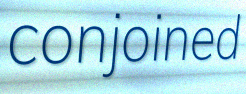
conjoined